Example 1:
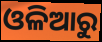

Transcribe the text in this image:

ଓଳିଆରୁ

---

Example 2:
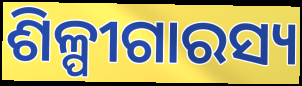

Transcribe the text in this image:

ଶିଳ୍ପୀଗାରସ୍ୟ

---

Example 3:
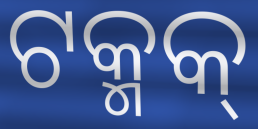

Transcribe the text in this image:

ଟକ୍ମକ୍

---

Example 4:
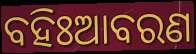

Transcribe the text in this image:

ବହିଃଆବରଣ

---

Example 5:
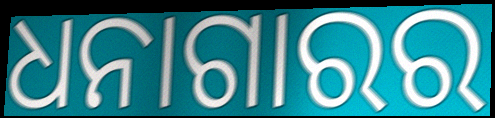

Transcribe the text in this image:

ଧନାଗାରର